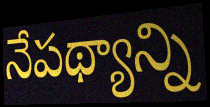
నేపథ్యాన్ని